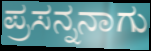
ಪ್ರಸನ್ನನಾಗು